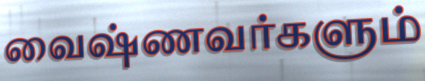
வைஷ்ணவர்களும்